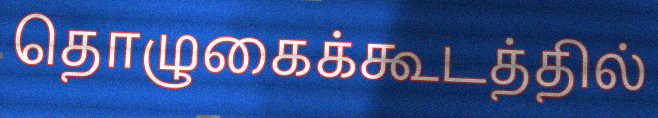
தொழுகைக்கூடத்தில்